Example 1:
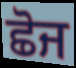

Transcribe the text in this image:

ਛੋਜ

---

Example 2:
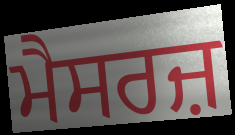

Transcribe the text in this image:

ਮੈਸਰਜ਼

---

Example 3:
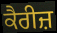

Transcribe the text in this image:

ਕੈਰੀਜ਼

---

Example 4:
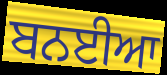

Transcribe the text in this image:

ਬਨਈਆ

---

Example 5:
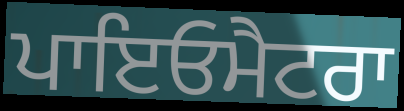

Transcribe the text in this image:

ਪਾਇਓਮੈਟਰਾ